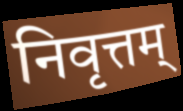
निवृत्तम्